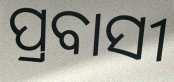
ପ୍ରବାସୀ